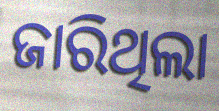
ଜାରିଥିଲା